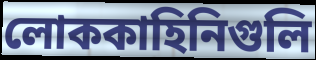
লোককাহিনিগুলি